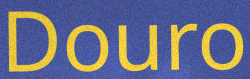
Douro